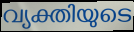
വ്യക്തിയുടെ